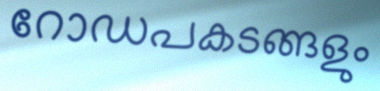
റോഡപകടങ്ങളും